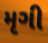
મૃગી